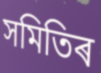
সমিতিৰ